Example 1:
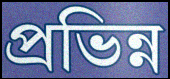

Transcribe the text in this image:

প্রভিন্ন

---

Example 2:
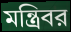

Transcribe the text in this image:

মন্ত্রিবর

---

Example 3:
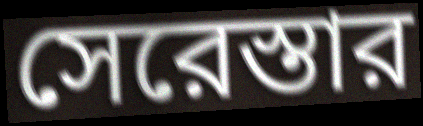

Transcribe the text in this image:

সেরেস্তার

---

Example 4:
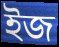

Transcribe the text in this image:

ইজ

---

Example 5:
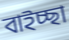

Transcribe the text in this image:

বাইচ্ছা